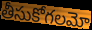
తీసుకోగలమో